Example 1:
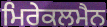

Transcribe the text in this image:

ਮਿਰੇਕਲਮੈਨ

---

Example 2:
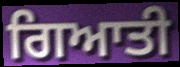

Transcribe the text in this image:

ਗਿਆਤੀ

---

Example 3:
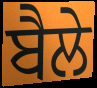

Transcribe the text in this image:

ਬੈਲੇ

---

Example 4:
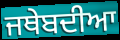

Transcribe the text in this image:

ਜਥੇਬਦੀਆ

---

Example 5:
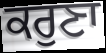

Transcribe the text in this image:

ਕਰੁਣਾ